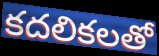
కదలికలతో